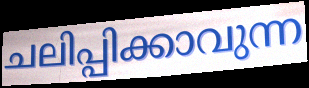
ചലിപ്പിക്കാവുന്ന